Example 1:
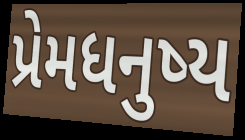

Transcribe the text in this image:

પ્રેમધનુષ્ય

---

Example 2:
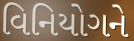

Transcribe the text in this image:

વિનિયોગને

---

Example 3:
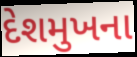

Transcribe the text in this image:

દેશમુખના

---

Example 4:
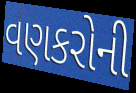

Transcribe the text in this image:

વણકરોની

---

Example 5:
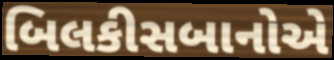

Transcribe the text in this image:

બિલકીસબાનોએ